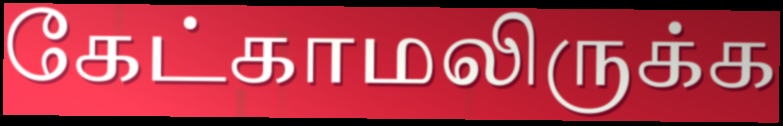
கேட்காமலிருக்க